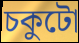
চকুটো